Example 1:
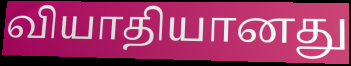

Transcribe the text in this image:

வியாதியானது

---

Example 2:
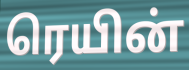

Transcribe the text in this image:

ரெயின்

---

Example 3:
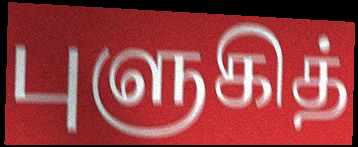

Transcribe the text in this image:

புளுகித்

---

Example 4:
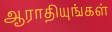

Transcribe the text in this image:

ஆராதியுங்கள்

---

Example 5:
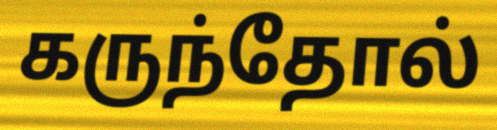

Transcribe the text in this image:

கருந்தோல்